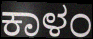
ಕಾಳಂ